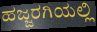
ಹಜ್ಜರಗಿಯಲ್ಲಿ